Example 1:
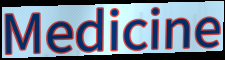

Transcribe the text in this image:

Medicine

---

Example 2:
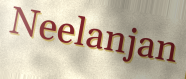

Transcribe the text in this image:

Neelanjan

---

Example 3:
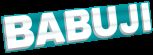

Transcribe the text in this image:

BABUJI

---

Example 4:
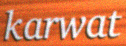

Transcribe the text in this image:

karwat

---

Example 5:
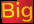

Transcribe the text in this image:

Big